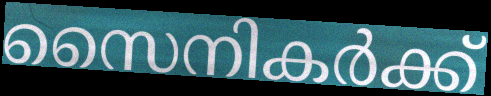
സൈനികർക്ക്